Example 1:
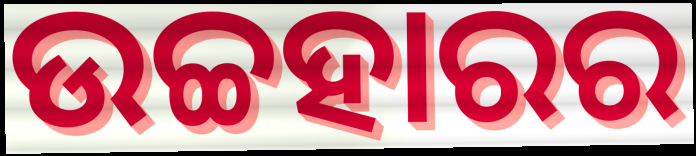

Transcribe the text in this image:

ଉଚ୍ଚହାରର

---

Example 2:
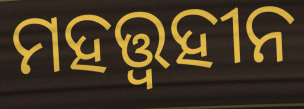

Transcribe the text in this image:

ମହତ୍ତ୍ବହୀନ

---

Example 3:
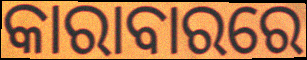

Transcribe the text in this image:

କାରାବାରରେ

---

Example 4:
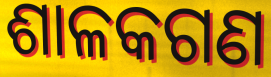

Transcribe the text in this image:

ଶାଳକଗଣ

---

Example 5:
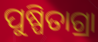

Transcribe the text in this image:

ପୁଷ୍ପିତାଗ୍ରା